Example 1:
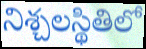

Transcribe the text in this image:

నిశ్చలస్థితిలో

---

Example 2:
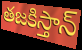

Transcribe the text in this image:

తజకిస్తాన్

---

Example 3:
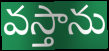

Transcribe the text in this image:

వస్తాను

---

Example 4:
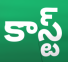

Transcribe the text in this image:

కాస్ట్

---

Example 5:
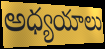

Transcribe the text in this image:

అధ్యయాలు